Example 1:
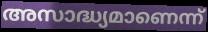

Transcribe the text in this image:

അസാദ്ധ്യമാണെന്ന്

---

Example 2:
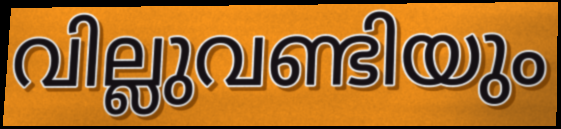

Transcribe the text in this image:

വില്ലുവണ്ടിയും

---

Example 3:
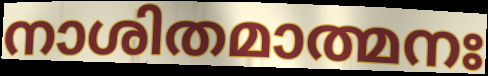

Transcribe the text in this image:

നാശിതമാത്മനഃ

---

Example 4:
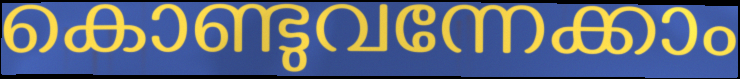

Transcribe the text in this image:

കൊണ്ടുവന്നേക്കാം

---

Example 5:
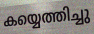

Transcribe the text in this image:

കയ്യെത്തിച്ചു